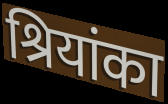
श्रियांका